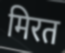
मिरत